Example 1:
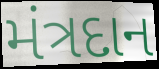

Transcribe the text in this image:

મંત્રદાન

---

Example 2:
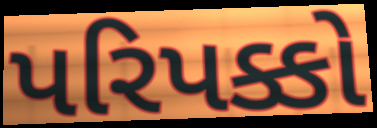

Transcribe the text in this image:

પરિપક્કો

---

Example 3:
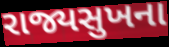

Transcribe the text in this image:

રાજ્યસુખના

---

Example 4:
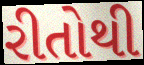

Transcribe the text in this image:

રીતોથી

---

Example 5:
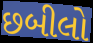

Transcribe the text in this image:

છબીલો